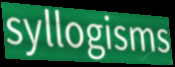
syllogisms